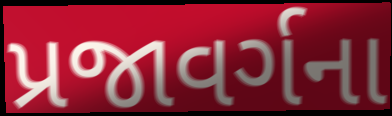
પ્રજાવર્ગના